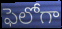
ఫెలోగా